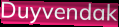
Duyvendak